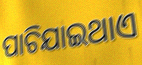
ପାଚିଯାଇଥାଏ